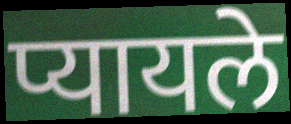
प्यायले